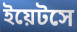
ইয়েটসে